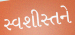
સ્વશીસ્તને